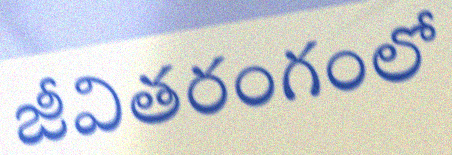
జీవితరంగంలో